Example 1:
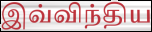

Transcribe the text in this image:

இவ்விந்திய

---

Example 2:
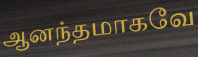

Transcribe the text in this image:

ஆனந்தமாகவே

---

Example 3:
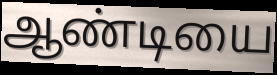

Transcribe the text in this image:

ஆண்டியை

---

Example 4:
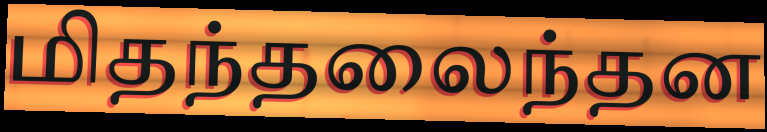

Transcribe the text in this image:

மிதந்தலைந்தன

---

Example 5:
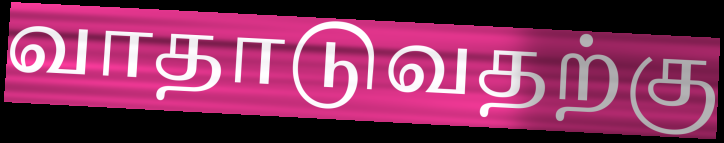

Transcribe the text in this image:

வாதாடுவதற்கு